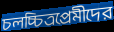
চলচ্চিত্রপ্রেমীদের